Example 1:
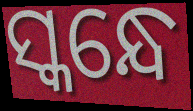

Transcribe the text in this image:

ସ୍କନ୍ଧେ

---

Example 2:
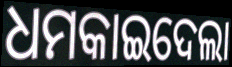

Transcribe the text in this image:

ଧମକାଇଦେଲା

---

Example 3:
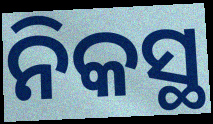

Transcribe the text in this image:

ନିକସ୍ଥ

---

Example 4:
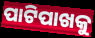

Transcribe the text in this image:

ପାଟିପାଖକୁ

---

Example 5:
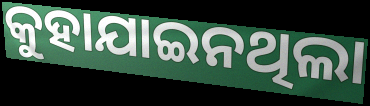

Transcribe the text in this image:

କୁହାଯାଇନଥିଲା